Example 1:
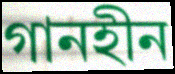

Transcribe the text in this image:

গানহীন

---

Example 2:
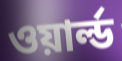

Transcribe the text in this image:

ওয়ার্ল্ড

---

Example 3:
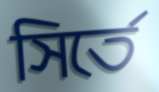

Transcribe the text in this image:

সির্তে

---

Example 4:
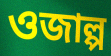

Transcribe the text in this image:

ওজাল্প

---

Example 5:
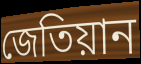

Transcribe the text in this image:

জেতিয়ান